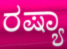
ರಷ್ಯಾ